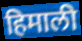
हिमाली